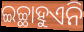
ଇଚ୍ଛାହୁଏନି